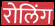
रोलिंग